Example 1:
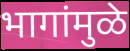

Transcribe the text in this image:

भागांमुळे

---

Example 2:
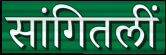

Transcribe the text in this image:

सांगितलीं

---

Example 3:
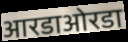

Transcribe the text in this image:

आरडाओरडा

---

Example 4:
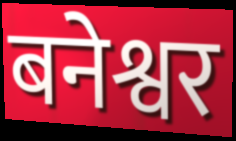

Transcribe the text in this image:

बनेश्वर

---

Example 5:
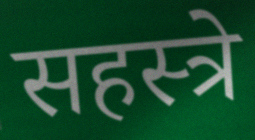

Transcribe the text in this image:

सहस्त्रे